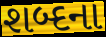
શબ્દના